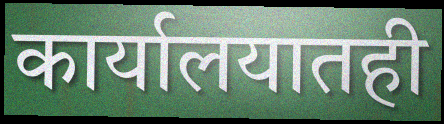
कार्यालयातही